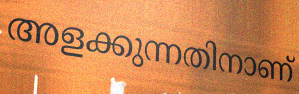
അളക്കുന്നതിനാണ്